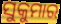
ସୁକୁମାର